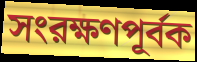
সংরক্ষণপূর্বক